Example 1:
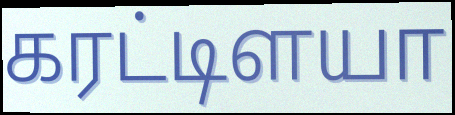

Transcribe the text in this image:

கரட்டிளயா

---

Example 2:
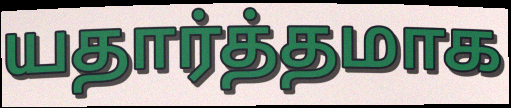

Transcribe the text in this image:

யதார்த்தமாக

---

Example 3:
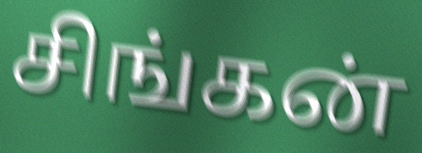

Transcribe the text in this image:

சிங்கன்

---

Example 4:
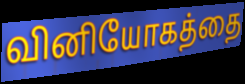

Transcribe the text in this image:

வினியோகத்தை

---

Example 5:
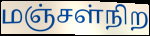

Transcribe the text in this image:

மஞ்சள்நிற